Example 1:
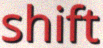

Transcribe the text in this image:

shift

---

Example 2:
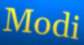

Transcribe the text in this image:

Modi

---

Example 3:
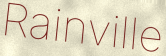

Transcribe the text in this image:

Rainville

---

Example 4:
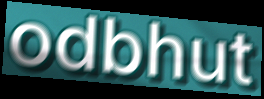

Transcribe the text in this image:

odbhut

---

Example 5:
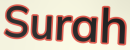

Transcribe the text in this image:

Surah